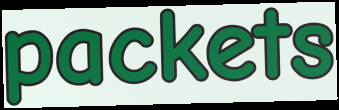
packets